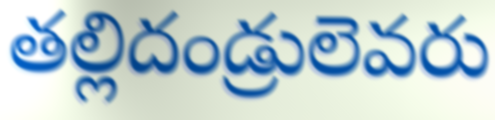
తల్లిదండ్రులెవరు